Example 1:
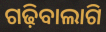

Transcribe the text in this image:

ଗଢ଼ିବାଲାଗି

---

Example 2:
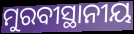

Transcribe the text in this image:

ମୁରବୀସ୍ଥାନୀୟ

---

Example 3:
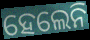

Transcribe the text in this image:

ହେଲେନି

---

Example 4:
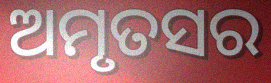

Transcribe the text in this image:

ଅମୃତସର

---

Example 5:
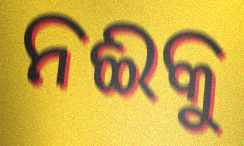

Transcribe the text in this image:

ନଈକୁ